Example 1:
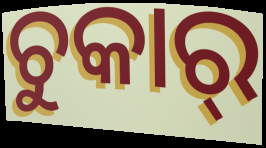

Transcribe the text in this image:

ଚୁକାର୍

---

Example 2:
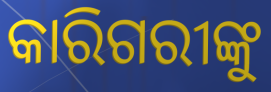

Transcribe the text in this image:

କାରିଗରୀଙ୍କୁ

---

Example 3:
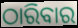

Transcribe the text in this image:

ଠାରିବାର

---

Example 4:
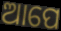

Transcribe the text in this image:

ଆପେ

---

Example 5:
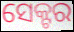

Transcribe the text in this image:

ସେକ୍ଟର